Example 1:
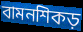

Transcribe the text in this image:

বামনশিকড়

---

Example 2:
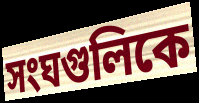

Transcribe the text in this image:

সংঘগুলিকে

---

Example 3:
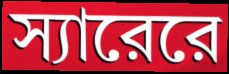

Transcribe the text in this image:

স্যারেরে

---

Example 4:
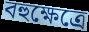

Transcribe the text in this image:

বহুক্ষেত্রে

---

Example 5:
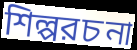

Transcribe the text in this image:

শিল্পরচনা